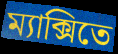
ম্যাক্সিতে